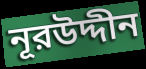
নূরউদ্দীন